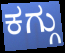
ಕಗ್ಗು